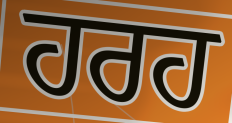
ਹਰਹ